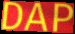
DAP